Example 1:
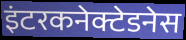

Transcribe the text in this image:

इंटरकनेक्टेडनेस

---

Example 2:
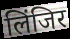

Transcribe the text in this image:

लिंजिर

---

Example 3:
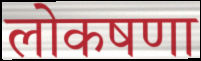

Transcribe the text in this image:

लोकषणा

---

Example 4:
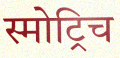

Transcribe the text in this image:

स्मोट्रिच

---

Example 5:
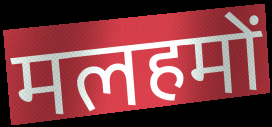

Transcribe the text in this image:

मलहमों